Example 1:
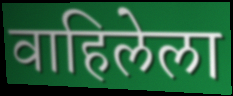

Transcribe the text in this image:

वाहिलेला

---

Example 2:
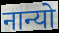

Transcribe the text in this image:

नान्यो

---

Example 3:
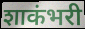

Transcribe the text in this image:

शाकंभरी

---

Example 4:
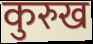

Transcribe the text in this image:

कुरुख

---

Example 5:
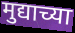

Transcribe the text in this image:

मुद्याच्या